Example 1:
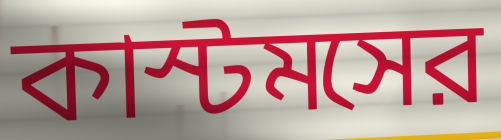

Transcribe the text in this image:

কাস্টমসের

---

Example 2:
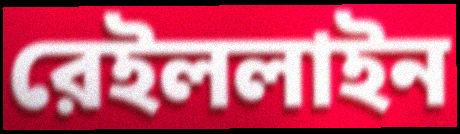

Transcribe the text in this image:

রেইললাইন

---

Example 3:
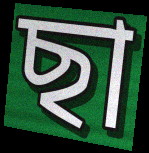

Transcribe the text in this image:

ছা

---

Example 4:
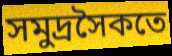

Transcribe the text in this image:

সমুদ্রসৈকতে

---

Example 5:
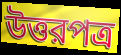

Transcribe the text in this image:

উত্তরপত্র